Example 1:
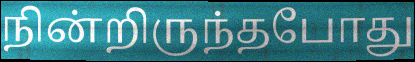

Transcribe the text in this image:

நின்றிருந்தபோது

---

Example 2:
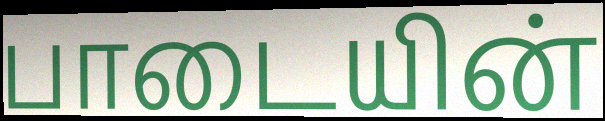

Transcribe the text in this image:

பாடையின்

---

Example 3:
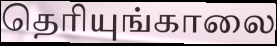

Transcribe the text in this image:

தெரியுங்காலை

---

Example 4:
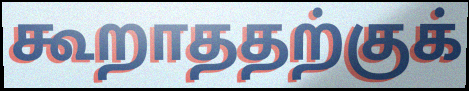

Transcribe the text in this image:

கூறாததற்குக்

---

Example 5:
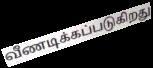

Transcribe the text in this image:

வீணடிக்கப்படுகிறது